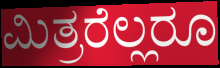
ಮಿತ್ರರೆಲ್ಲರೂ